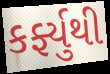
કર્ફ્યુથી